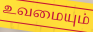
உவமையும்